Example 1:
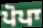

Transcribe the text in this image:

ਪੋਪਾ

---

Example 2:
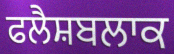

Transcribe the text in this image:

ਫਲੈਸ਼ਬਲਾਕ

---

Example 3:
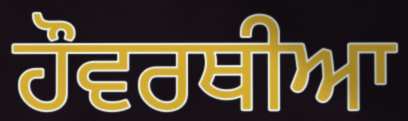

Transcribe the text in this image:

ਹੌਵਰਥੀਆ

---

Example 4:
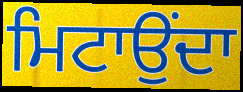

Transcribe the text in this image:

ਮਿਟਾਉਂਦਾ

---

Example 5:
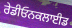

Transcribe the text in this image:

ਰੇਡੀਓਨਕਲਾਈਡ